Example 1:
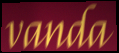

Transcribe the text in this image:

vanda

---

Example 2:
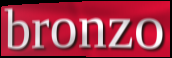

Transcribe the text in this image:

bronzo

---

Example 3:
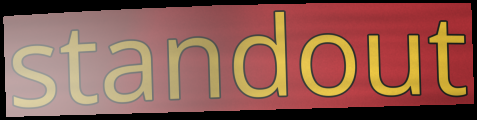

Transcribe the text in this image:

standout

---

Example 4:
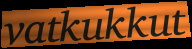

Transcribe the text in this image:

vatkukkut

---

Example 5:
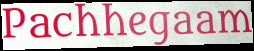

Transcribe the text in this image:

Pachhegaam